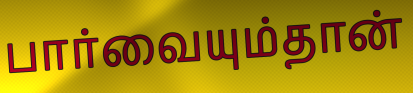
பார்வையும்தான்